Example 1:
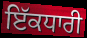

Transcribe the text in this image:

ਇੱਕਧਾਰੀ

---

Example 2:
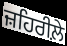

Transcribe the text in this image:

ਜ਼ਹਿਰੀਲ਼ੇ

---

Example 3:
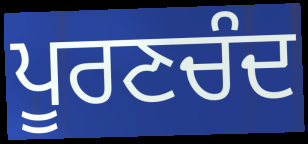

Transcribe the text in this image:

ਪੂਰਣਚੰਦ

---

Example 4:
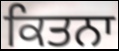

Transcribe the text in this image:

ਕਿਤਨਾ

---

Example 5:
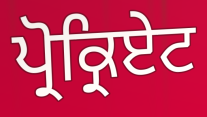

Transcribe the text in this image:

ਪ੍ਰੋਕ੍ਰਿਏਟ